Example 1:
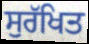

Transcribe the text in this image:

ਸੁਰੱਖਿਤ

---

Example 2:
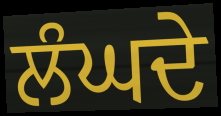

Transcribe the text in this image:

ਲੰਘਦੇ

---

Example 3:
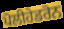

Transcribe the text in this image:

ਪੋਲੀਹੇਡਰੋਨ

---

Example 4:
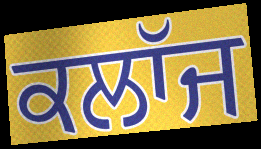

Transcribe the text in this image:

ਕਲਾੱਜ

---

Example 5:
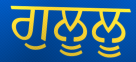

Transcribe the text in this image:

ਗੁਲੂਲੂ